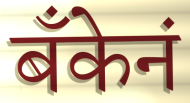
बॅंकेनं